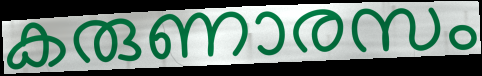
കരുണാരസം